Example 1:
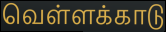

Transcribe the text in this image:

வெள்ளக்காடு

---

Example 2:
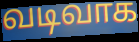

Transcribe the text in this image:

வடிவாக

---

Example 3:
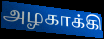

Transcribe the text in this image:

அழகாக்கி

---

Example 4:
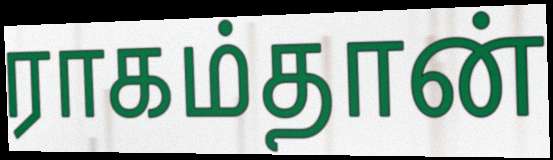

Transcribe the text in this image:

ராகம்தான்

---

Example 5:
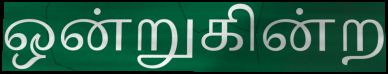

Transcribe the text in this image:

ஒன்றுகின்ற